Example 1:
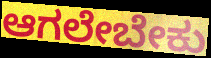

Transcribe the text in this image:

ಆಗಲೇಬೇಕು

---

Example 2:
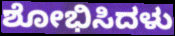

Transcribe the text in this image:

ಶೋಭಿಸಿದಳು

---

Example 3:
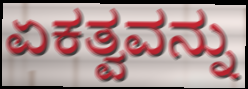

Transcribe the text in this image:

ಏಕತ್ವವನ್ನು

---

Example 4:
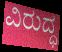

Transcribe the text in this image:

ವಿರುದ್ಧ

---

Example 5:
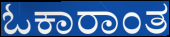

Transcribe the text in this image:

ಓಕಾರಾಂತ